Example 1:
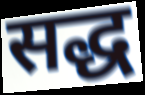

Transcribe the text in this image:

सद्ध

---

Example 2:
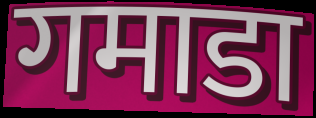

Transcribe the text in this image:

गमाडा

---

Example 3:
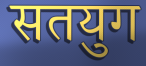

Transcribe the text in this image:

सतयुग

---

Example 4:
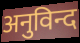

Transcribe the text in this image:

अनुविन्द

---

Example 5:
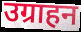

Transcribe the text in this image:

उग्राहन